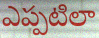
ఎప్పటిలా